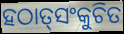
ହଠାତ୍‌ସଂକୁଚିତ